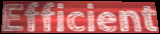
Efficient